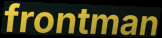
frontman